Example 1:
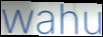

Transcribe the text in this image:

wahu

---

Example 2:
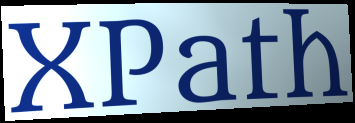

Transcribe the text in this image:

XPath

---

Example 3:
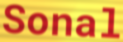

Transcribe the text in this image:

Sonal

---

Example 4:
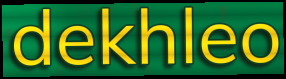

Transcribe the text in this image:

dekhleo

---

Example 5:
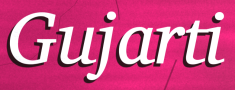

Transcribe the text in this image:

Gujarti